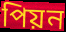
পিয়ন